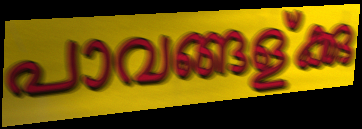
പാവങ്ങള്ക്കു